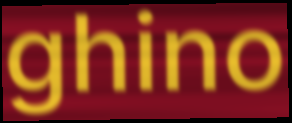
ghino